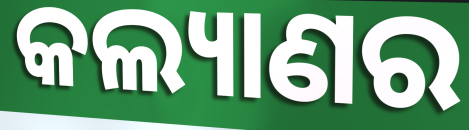
କଲ୍ୟାଣର